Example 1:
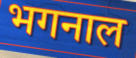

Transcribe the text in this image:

भगनाल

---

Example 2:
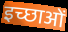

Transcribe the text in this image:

इच्छाओं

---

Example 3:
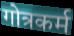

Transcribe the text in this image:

गोत्रकर्म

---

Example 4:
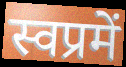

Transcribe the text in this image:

स्वप्रमें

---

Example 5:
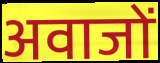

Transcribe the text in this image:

अवाजों